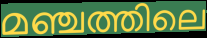
മഞ്ചത്തിലെ